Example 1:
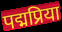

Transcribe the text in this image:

पद्मप्रिया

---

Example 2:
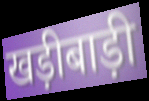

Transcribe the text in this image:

खड़ीबाड़ी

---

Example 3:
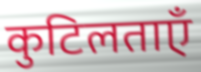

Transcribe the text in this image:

कुटिलताएँ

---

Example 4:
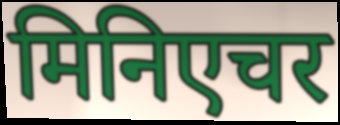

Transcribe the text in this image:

मिनिएचर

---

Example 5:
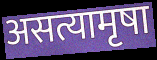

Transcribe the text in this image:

असत्यामृषा